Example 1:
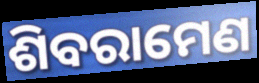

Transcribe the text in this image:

ଶିବରାମେଣ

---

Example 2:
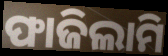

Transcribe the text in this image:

ଫାଜିଲାମି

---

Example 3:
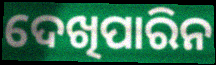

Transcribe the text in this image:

ଦେଖିପାରିନ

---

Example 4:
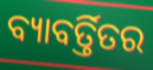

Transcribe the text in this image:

ବ୍ୟାବର୍ତ୍ତିତର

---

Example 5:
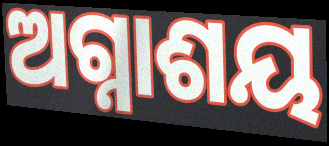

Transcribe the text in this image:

ଅଗ୍ନାଶୟ